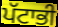
ਪੱਟਾਭੀ